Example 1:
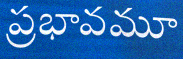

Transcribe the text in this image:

ప్రభావమూ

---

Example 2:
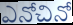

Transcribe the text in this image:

ఎనోచినో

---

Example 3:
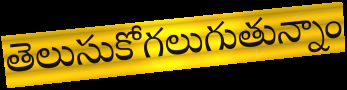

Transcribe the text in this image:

తెలుసుకోగలుగుతున్నాం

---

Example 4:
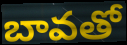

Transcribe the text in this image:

బావతో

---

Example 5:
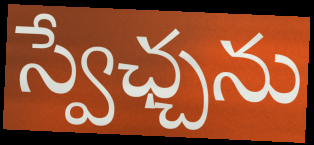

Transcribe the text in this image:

స్వేఛ్చను